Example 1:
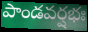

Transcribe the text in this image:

పాండవర్షభః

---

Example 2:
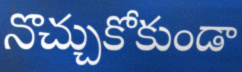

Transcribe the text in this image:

నొచ్చుకోకుండా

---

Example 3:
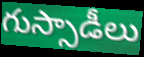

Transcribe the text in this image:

గుస్సాడీలు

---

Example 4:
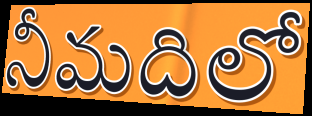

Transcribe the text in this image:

నీమదిలో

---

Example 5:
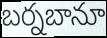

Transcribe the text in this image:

బర్నబానూ